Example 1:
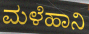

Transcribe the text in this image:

ಮಳೆಹಾನಿ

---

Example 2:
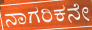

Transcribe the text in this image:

ನಾಗರಿಕನೇ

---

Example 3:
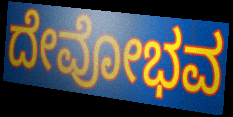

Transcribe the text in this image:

ದೇವೋಭವ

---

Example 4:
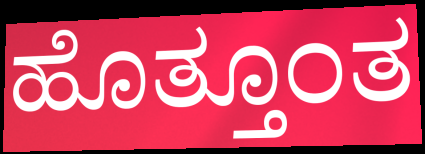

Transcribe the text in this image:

ಹೊತ್ತೂಂತ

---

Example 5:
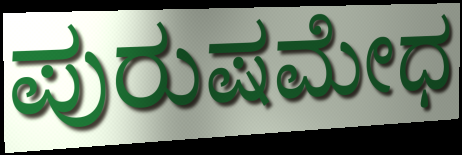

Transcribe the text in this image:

ಪುರುಷಮೇಧ